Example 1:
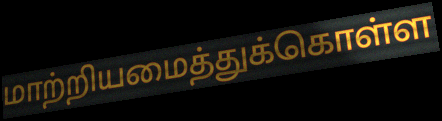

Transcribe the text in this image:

மாற்றியமைத்துக்கொள்ள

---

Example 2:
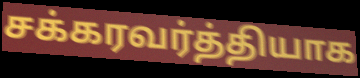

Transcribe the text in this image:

சக்கரவர்த்தியாக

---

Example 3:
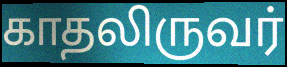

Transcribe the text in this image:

காதலிருவர்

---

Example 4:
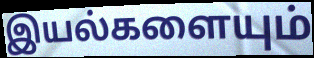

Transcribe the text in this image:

இயல்களையும்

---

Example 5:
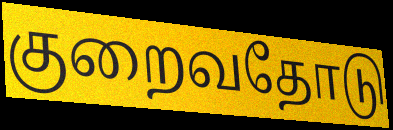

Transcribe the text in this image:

குறைவதோடு